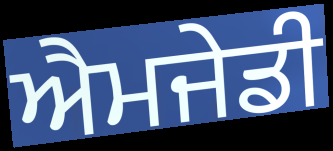
ਐਮਜੇਡੀ